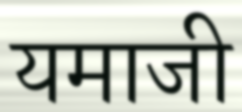
यमाजी